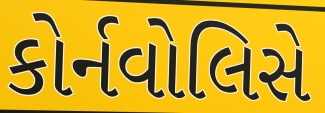
કોર્નવોલિસે